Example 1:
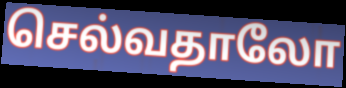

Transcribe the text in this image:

செல்வதாலோ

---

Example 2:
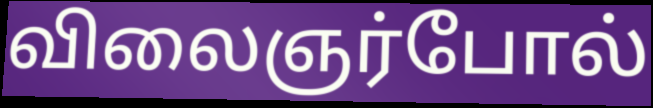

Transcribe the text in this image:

விலைஞர்போல்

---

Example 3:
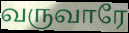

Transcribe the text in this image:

வருவாரே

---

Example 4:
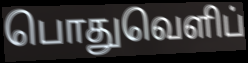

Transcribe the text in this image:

பொதுவெளிப்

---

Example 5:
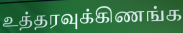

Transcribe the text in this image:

உத்தரவுக்கிணங்க